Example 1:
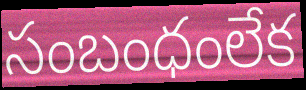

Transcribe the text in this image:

సంబంధంలేక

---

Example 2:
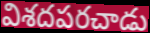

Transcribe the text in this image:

విశదపరచాడు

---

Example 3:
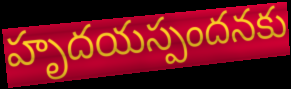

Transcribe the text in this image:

హృదయస్పందనకు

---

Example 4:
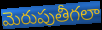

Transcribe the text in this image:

మెరుపుతీగలా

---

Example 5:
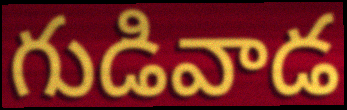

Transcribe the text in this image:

గుడివాడ